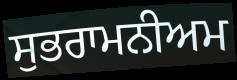
ਸੁਭਰਾਮਨੀਅਮ